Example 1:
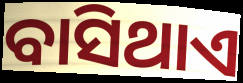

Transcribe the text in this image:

ବାସିଥାଏ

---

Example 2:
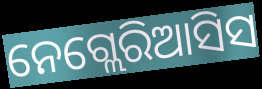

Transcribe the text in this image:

ନେଗ୍ଲେରିଆସିସ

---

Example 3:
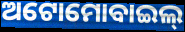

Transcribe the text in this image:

ଅଟୋମୋବାଇଲ୍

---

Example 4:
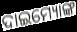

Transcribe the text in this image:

ଦାଇମ୍ଯୋଙ୍କ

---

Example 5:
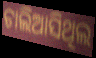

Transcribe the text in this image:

ଚାଲିଆସିଥିଲ